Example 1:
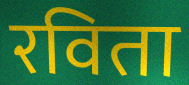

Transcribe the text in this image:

रविता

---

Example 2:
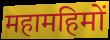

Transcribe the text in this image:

महामहिमों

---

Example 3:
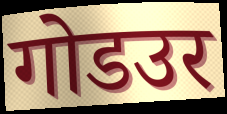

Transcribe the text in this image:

गोडउर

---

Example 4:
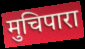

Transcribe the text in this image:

मुचिपारा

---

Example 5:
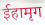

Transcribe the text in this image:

ईहामृग